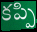
కప్పి